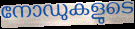
നോഡുകളുടെ